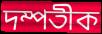
দম্পতীক